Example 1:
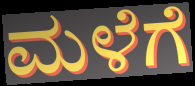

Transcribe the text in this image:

ಮಳೆಗೆ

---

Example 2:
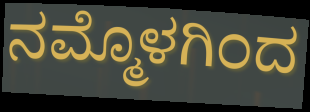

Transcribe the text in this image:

ನಮ್ಮೊಳಗಿಂದ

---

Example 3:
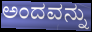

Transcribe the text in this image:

ಅಂದವನ್ನು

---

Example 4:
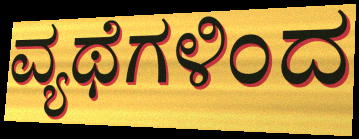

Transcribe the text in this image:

ವ್ಯಥೆಗಳಿಂದ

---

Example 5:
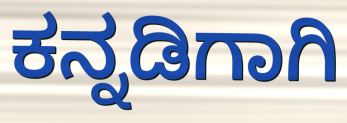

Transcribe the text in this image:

ಕನ್ನಡಿಗಾಗಿ